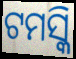
ଟମସ୍କି